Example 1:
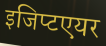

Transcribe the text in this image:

इजिप्टएयर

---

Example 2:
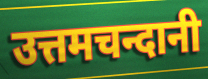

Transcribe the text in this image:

उत्तमचन्दानी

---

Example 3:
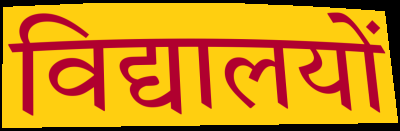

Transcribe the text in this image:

विद्यालयों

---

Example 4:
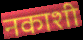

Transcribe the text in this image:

नकाशी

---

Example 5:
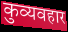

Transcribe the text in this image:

कुव्यवहार